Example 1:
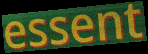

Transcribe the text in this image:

essent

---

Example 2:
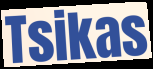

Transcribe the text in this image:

Tsikas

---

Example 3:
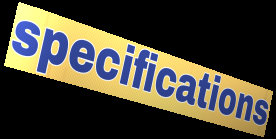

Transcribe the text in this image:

specifications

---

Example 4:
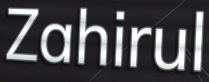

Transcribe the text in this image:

Zahirul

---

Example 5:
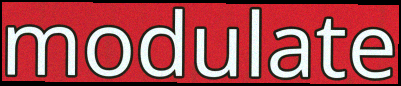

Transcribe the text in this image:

modulate